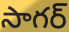
సాగర్